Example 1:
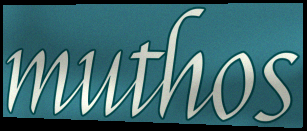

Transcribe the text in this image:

muthos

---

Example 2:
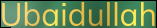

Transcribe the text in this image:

Ubaidullah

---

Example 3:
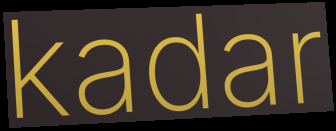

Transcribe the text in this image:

kadar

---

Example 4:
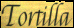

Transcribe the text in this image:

Tortilla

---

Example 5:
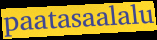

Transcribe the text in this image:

paatasaalalu